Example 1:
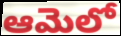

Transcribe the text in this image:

ఆమెలో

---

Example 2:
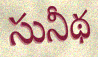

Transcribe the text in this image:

సునీథ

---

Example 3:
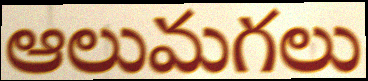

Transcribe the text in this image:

ఆలుమగలు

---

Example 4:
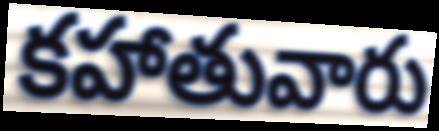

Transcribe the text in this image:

కహాతువారు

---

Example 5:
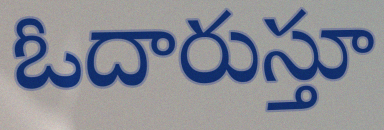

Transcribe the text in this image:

ఓదారుస్తూ